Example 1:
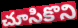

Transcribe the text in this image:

చూసికొని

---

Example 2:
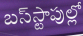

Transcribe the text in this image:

బస్‌స్టాపుల్లో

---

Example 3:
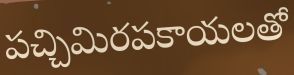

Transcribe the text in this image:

పచ్చిమిరపకాయలతో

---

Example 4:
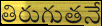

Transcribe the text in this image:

తిరుగుతనే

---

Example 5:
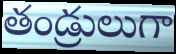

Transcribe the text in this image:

తండ్రులుగా